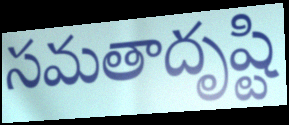
సమతాదృష్టి